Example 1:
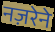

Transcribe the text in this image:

नज़रेने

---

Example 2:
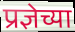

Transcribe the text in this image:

प्रज्ञेच्या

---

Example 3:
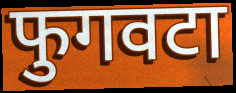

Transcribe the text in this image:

फुगवटा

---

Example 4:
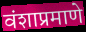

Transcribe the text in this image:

वंशाप्रमाणे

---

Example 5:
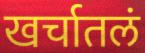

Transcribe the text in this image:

खर्चातलं